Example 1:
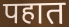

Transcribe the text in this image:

पहात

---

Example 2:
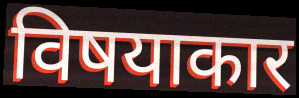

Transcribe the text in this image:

विषयाकार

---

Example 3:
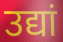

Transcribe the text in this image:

उद्यां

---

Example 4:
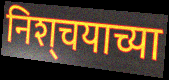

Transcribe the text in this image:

निश्चयाच्या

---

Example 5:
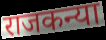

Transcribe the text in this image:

राजकन्या